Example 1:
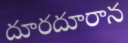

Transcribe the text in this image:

దూరదూరాన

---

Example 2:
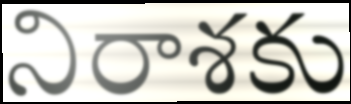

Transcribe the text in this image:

నిరాశకు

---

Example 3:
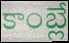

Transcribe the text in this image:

కాంబ్లే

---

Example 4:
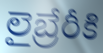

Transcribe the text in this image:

లైబ్రేరీకి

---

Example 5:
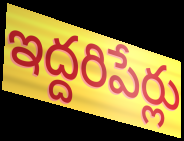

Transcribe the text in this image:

ఇద్దరిపేర్లు